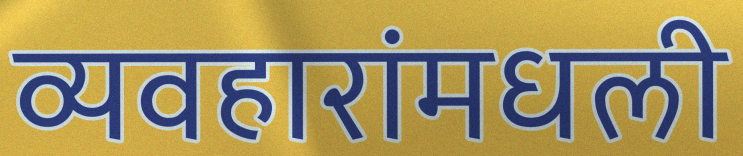
व्यवहारांमधली